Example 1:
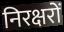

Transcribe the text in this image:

निरक्षरों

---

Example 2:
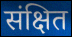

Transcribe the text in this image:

संक्षित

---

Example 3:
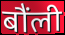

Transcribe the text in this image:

बौंली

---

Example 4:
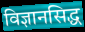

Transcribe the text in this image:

विज्ञानसिद्ध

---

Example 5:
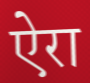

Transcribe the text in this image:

ऐरा